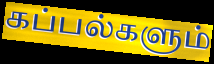
கப்பல்களும்